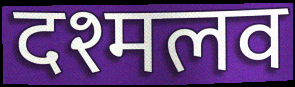
दश्मलव